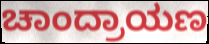
ಚಾಂದ್ರಾಯಣ